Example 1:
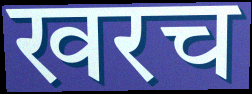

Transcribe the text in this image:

खरच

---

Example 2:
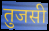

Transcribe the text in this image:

तुजसी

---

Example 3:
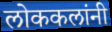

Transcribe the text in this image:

लोककलांनी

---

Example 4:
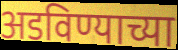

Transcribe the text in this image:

अडविण्याच्या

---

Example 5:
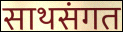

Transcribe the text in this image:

साथसंगत